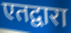
एतद्वारा